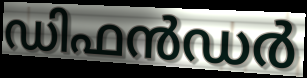
ഡിഫൻഡർ